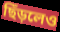
ছিঁড়লেও